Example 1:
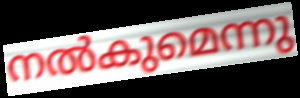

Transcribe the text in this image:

നൽകുമെന്നു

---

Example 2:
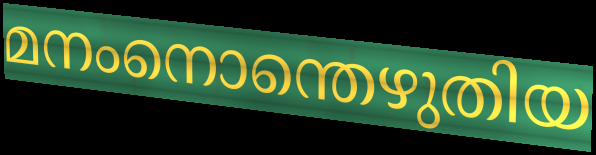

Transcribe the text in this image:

മനംനൊന്തെഴുതിയ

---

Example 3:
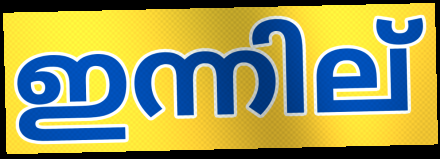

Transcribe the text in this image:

ഇന്നില്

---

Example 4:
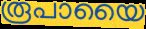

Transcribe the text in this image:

രൂപായൈ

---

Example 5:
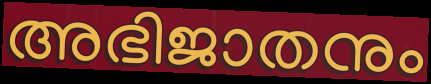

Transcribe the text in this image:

അഭിജാതനും